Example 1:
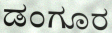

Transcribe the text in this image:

ಡಂಗೂರ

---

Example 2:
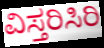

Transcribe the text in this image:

ವಿಸ್ತರಿಸಿರಿ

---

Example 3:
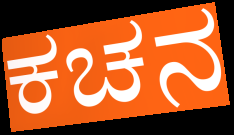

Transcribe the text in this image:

ಕಚನ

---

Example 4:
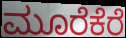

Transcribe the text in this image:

ಮೂರೆಕೆರೆ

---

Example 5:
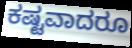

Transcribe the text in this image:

ಕಷ್ಟವಾದರೂ